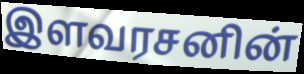
இளவரசனின்